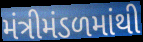
મંત્રીમંડળમાંથી